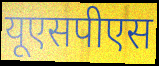
यूएसपीएस